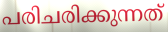
പരിചരിക്കുന്നത്